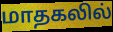
மாதகலில்